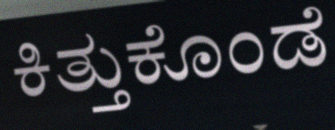
ಕಿತ್ತುಕೊಂಡೆ